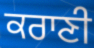
ਕਰਾਣੀ